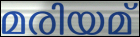
മരിയമ്